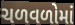
ચળવળોમાં